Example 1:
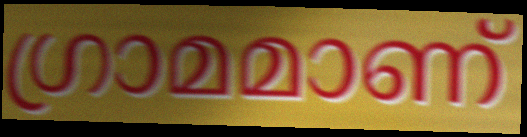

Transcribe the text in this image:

ഗ്രാമമാണ്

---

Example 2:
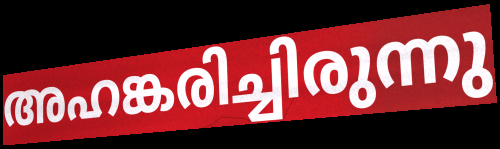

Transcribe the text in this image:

അഹങ്കരിച്ചിരുന്നു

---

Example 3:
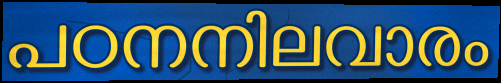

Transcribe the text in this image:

പഠനനിലവാരം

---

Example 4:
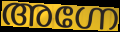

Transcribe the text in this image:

അഗ്നേ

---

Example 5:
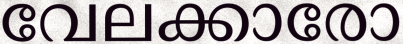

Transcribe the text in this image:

വേലക്കാരോ